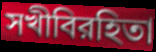
সখীবিরহিতা